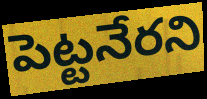
పెట్టనేరని